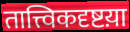
तात्त्विकदृष्टय़ा